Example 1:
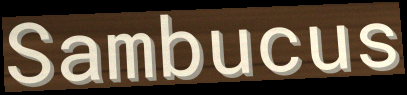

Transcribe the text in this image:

Sambucus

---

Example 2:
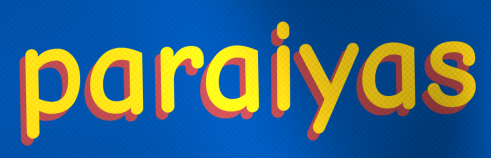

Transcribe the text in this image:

paraiyas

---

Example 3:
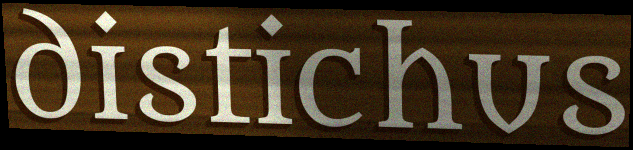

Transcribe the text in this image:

distichus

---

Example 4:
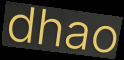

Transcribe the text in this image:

dhao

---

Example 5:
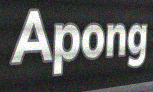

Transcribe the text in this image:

Apong